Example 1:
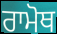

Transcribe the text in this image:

ਰਾਮੋਥ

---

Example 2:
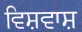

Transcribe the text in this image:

ਵਿਸ਼ਵਾਸ਼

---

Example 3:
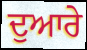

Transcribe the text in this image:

ਦੁਆਰੇ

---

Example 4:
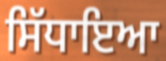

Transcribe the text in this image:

ਸਿੱਧਾਇਆ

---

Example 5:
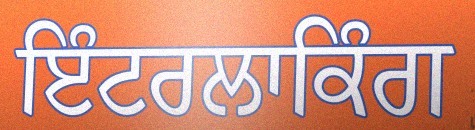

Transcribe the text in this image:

ਇੰਟਰਲਾਕਿੰਗ